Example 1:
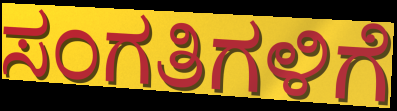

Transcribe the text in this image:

ಸಂಗತಿಗಳಿಗೆ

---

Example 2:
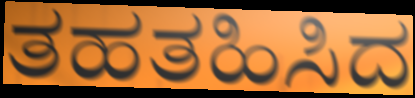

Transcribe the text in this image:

ತಹತಹಿಸಿದ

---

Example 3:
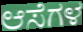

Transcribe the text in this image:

ಆಸೆಗಳ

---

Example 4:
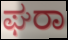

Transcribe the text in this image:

ಘರಾ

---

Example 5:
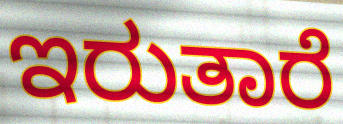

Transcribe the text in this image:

ಇರುತಾರೆ